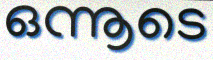
ഒന്നൂടെ